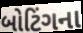
બોટિંગના